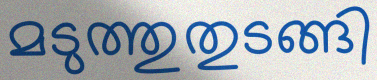
മടുത്തുതുടങ്ങി